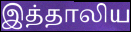
இத்தாலிய